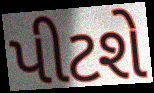
પીટશે